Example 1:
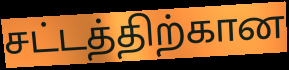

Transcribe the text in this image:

சட்டத்திற்கான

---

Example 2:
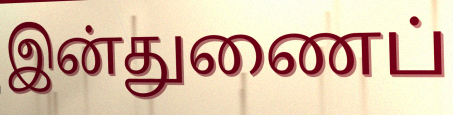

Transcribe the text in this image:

இன்துணைப்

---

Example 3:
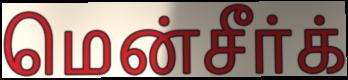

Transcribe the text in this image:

மென்சீர்க்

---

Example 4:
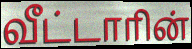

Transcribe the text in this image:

வீட்டாரின்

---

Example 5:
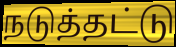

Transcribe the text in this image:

நடுத்தட்டு